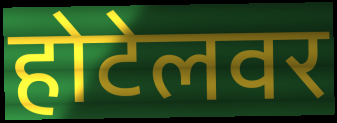
होटेलवर